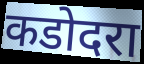
कडोदरा